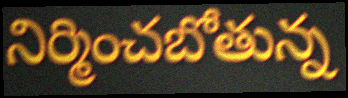
నిర్మించబోతున్న